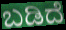
ಬಡಿದೆ